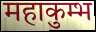
महाकुम्भ